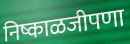
निष्काळजीपणा